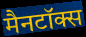
मैनटॉक्स